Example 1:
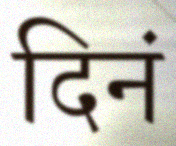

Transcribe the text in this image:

दिनं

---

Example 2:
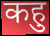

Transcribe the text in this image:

कहु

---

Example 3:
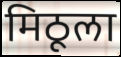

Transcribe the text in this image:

मिठूला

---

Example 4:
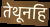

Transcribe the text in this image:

तेथूनहि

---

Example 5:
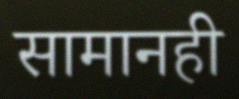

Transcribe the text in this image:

सामानही